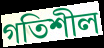
গতিশীল